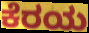
ಕೆರಯ